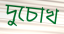
দুচোখ